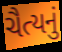
ચૈત્યનું